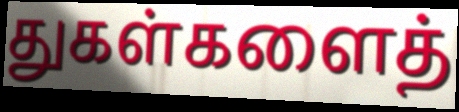
துகள்களைத்